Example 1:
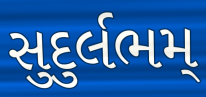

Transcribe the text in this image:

સુદુર્લભમ્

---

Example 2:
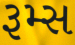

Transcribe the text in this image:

રૂમ્સ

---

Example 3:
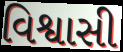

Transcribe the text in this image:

વિશ્વાસી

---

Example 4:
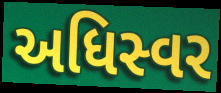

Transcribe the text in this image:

અધિસ્વર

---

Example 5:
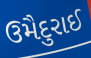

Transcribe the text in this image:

ઉમૈદુરાઈ